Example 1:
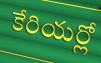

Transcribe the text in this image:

కేరియర్లో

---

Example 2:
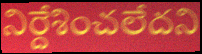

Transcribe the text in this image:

నిర్దేశించలేదని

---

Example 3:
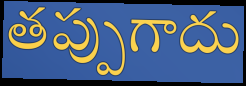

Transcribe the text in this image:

తప్పుగాదు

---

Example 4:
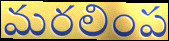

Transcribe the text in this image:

మరలింప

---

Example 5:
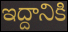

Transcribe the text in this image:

ఇద్దానికి